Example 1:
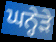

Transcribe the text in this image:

ਘਨ੍ਹੇੜੇ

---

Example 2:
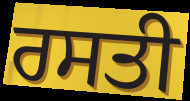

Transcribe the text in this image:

ਰਸਤੀ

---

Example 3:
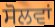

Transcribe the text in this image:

ਸੋਲਵਾਂ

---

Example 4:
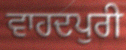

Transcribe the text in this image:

ਵਾਹਦਪੁਰੀ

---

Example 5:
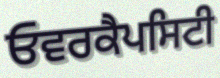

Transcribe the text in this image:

ਓਵਰਕੈਪਸਿਟੀ